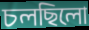
চলছিলো